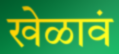
खेळावं